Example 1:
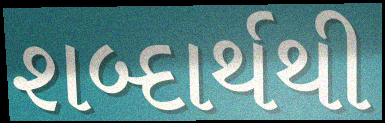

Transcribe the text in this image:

શબ્દાર્થથી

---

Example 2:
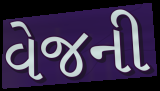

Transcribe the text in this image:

વેજની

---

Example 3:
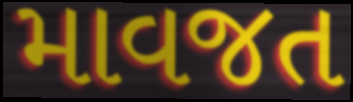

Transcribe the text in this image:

માવજત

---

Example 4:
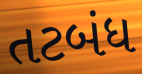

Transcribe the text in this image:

તટબંધ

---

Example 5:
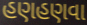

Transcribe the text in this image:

હણહણવા